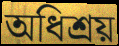
অধিশ্রয়